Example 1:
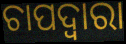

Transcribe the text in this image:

ଚାପଦ୍ବାରା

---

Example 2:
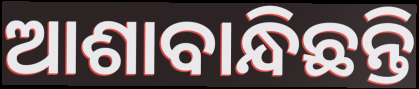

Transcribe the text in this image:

ଆଶାବାନ୍ଧିଛନ୍ତି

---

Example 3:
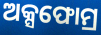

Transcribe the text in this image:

ଅକ୍ସଫୋମ୍ର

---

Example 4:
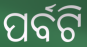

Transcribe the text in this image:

ପର୍ବଟି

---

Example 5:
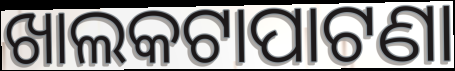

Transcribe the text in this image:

ଖାଲକଟାପାଟଣା